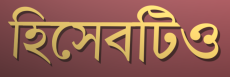
হিসেবটিও